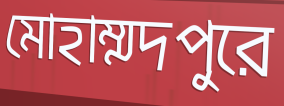
মোহাম্মদপুরে